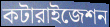
কটারাইজেশন